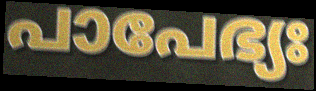
പാപേഭ്യഃ